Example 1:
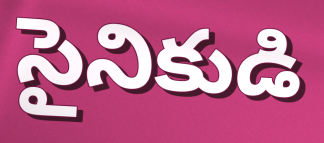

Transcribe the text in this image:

సైనికుడి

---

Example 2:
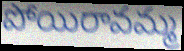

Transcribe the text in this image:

పోయిరావమ్మ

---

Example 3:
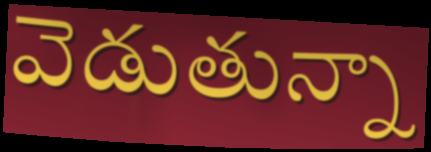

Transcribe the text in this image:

వెడుతున్నా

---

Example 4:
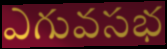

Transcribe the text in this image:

ఎగువసభ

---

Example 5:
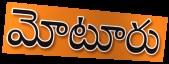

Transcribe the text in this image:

మోటూరు